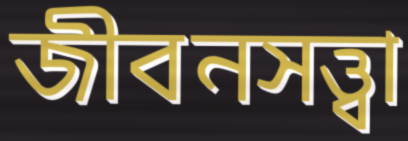
জীবনসত্ত্বা